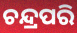
ଚନ୍ଦ୍ରପରି